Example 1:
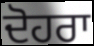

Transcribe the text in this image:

ਦੋਹਰਾ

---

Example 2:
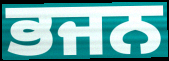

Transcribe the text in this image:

ਭਜਨ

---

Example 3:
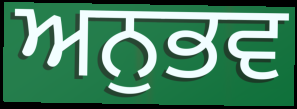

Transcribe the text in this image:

ਅਨੁਭਵ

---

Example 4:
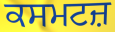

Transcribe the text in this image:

ਕਸਮਟਜ਼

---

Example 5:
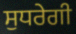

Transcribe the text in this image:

ਸੁਧਰੇਗੀ